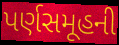
પર્ણસમૂહની